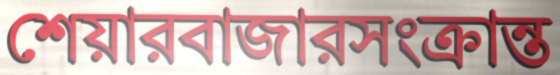
শেয়ারবাজারসংক্রান্ত